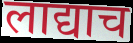
लाद्याच